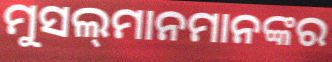
ମୁସଲ୍‌ମାନମାନଙ୍କର